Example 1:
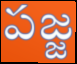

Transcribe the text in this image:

పజ్జ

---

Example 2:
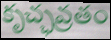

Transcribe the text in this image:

కృచ్ఛవ్రతం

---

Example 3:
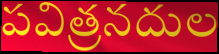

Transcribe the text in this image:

పవిత్రనదుల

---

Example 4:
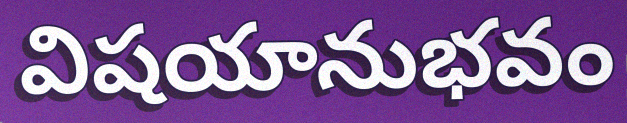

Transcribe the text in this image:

విషయానుభవం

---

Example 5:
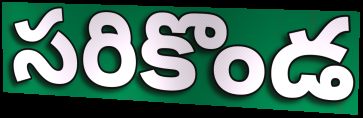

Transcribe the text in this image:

సరికొండ